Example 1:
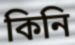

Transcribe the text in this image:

কিনি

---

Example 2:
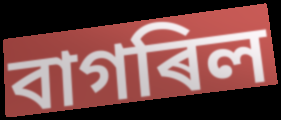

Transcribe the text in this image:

বাগৰিল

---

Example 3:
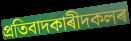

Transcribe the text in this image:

প্ৰতিবাদকাৰীদকলৰ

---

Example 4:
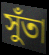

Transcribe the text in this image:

সুঁতা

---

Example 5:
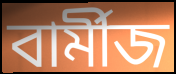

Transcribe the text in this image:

বাৰ্মীজ